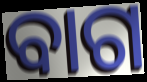
ବାଗ